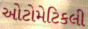
ઓટોમેટિકલી